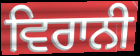
ਵਿਰਾਨੀ